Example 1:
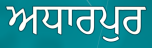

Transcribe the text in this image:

ਅਧਾਰਪੁਰ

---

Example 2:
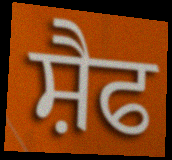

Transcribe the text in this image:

ਸ਼ੈਫ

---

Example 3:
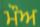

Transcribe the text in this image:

ਮੌਅ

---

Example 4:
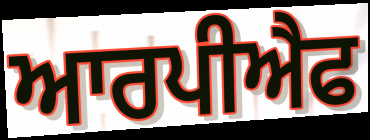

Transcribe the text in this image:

ਆਰਪੀਐਫ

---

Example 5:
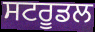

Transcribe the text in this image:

ਸਟਰੂਡਲ